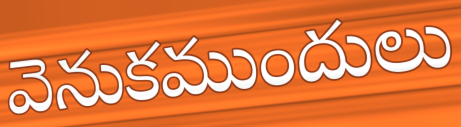
వెనుకముందులు